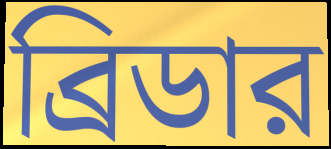
ব্রিডার